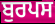
ਬੁਰਪਸ